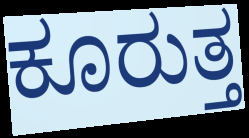
ಕೂರುತ್ತ